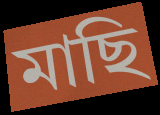
মাছি